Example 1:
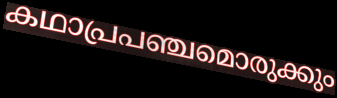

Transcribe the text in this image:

കഥാപ്രപഞ്ചമൊരുക്കും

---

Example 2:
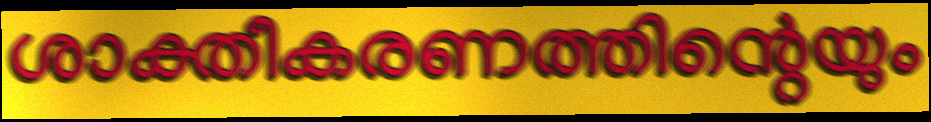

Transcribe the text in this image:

ശാക്തീകരണത്തിന്റെയും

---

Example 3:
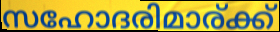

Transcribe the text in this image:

സഹോദരിമാര്ക്ക്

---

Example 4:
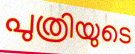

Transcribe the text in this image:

പുത്രിയുടെ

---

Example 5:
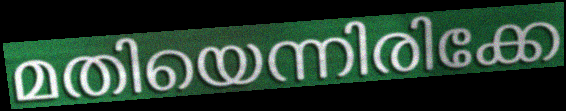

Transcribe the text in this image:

മതിയെന്നിരിക്കേ